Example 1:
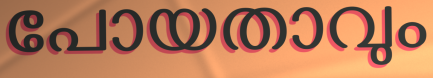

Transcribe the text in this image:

പോയതാവും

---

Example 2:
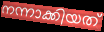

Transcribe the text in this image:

നന്നാക്കിയത്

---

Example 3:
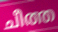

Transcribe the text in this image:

ചീത്ത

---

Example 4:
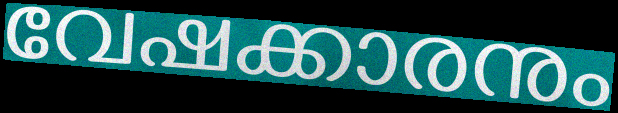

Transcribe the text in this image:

വേഷക്കാരനും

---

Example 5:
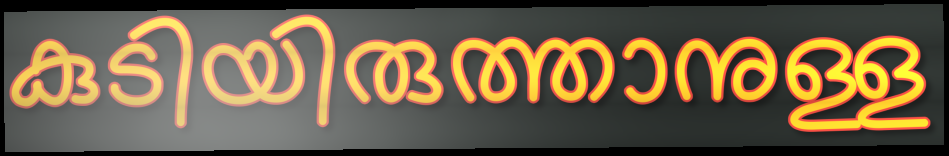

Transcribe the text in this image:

കുടിയിരുത്താനുള്ള